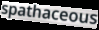
spathaceous